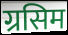
ग्रसिम